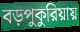
বড়পুকুরিয়ায়